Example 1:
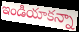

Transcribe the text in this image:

ఇండియాకన్నా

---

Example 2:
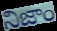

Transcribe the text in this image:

నిజాం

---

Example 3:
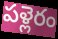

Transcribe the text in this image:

పళ్లెరం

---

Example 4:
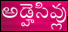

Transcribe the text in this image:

అడ్హెసివ్లు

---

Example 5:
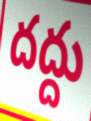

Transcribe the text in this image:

దద్దు